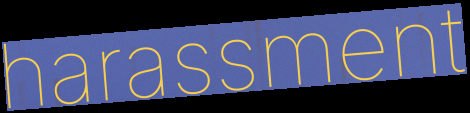
harassment